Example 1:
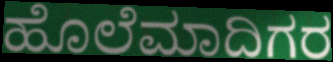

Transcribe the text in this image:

ಹೊಲೆಮಾದಿಗರ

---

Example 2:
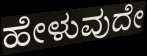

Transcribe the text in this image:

ಹೇಳುವುದೇ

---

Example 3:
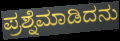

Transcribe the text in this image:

ಪ್ರಶ್ನೆಮಾಡಿದನು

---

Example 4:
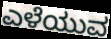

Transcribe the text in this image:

ಎಳೆಯುವ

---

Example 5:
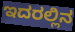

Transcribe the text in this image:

ಇದರಲ್ಲಿನ